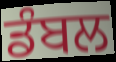
ਡੰਬਲ